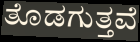
ತೊಡಗುತ್ತವೆ